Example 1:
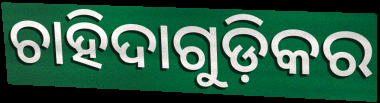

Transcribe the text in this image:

ଚାହିଦାଗୁଡ଼ିକର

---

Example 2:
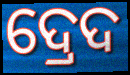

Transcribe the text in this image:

ଦ୍ରେଦ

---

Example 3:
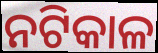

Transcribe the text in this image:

ନଟିକାଳ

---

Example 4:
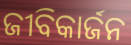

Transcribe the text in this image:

ଜୀବିକାର୍ଜନ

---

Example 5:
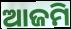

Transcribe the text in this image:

ଆଜମି